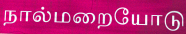
நால்மறையோடு